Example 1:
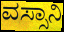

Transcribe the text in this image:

ವಸ್ಸಾನಿ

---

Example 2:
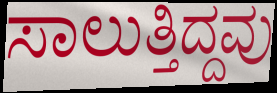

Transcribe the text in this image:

ಸಾಲುತ್ತಿದ್ದವು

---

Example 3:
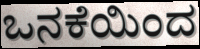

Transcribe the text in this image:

ಒನಕೆಯಿಂದ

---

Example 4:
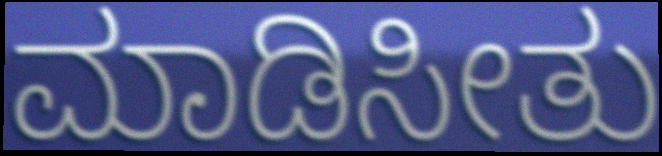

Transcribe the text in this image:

ಮಾಡಿಸೀತು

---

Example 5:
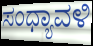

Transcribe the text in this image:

ಸಂಧ್ಯಾವಳಿ